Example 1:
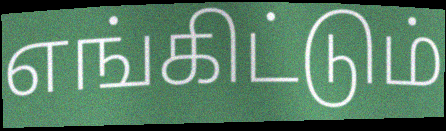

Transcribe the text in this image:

எங்கிட்டும்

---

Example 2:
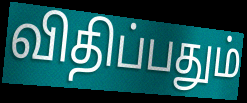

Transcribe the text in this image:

விதிப்பதும்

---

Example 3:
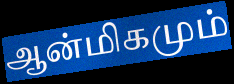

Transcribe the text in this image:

ஆன்மிகமும்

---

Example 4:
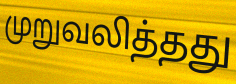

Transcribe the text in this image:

முறுவலித்தது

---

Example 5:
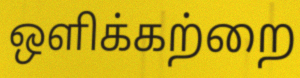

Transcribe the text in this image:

ஒளிக்கற்றை